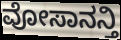
ವೋಸಾನನ್ತಿ